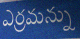
ఎర్రమన్ను